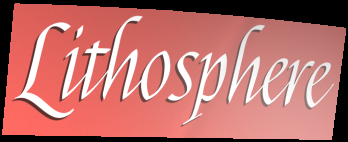
Lithosphere